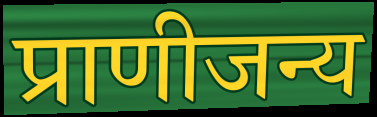
प्राणीजन्य